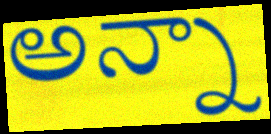
అన్నా